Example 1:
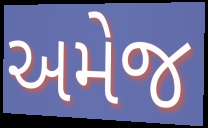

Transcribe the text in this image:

અમેજ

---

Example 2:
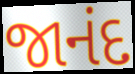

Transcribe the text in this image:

જાનંદ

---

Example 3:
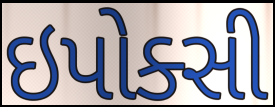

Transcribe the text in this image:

ઇપોક્સી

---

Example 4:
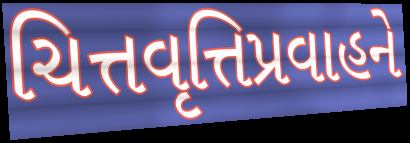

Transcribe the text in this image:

ચિત્તવૃત્તિપ્રવાહને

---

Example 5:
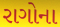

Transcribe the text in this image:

રાગોના